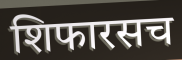
शिफारसच